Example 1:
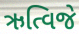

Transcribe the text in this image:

ઋત્વિજે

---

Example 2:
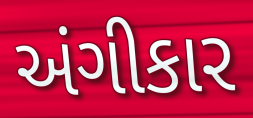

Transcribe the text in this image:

અંગીકાર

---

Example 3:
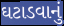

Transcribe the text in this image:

ઘટાડવાનું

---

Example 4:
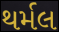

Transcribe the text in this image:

થર્મલ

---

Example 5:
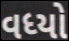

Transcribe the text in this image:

વધ્યો